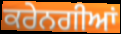
ਕਰੇਨਗੀਆਂ